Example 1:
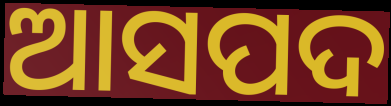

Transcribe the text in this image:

ଆସପଦ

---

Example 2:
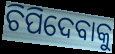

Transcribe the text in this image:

ଚିପିଦେବାକୁ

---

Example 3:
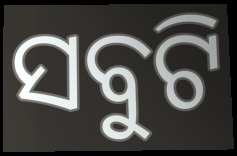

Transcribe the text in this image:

ସବୁଟି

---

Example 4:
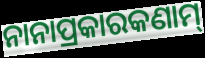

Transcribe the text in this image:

ନାନାପ୍ରକାରକଣାମ୍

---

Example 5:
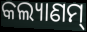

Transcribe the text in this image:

କଲ୍ୟାଣମ୍